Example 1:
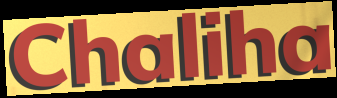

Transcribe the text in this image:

Chaliha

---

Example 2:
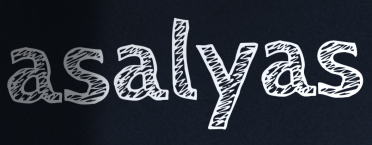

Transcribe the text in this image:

asalyas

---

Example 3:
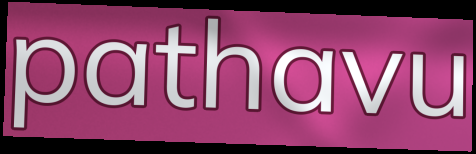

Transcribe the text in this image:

pathavu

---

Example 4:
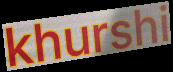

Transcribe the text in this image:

khurshi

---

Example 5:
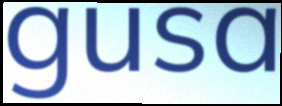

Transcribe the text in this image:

gusa